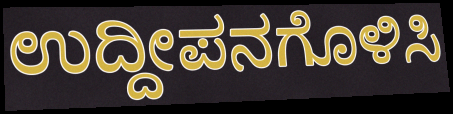
ಉದ್ದೀಪನಗೊಳಿಸಿ